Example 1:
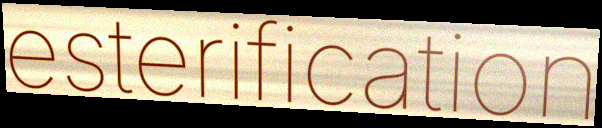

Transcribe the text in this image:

esterification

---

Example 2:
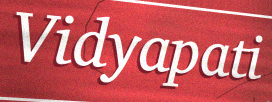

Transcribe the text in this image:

Vidyapati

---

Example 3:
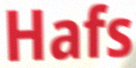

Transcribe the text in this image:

Hafs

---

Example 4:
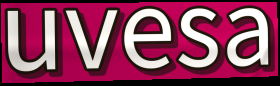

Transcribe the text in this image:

uvesa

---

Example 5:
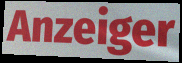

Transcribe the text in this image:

Anzeiger